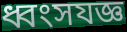
ধ্বংসযজ্ঞ